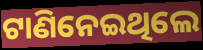
ଟାଣିନେଇଥିଲେ